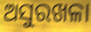
ଅସୁରଖଳା